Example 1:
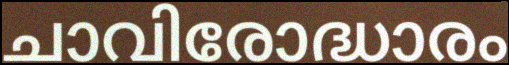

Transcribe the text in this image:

ചാവിരോദ്ധാരം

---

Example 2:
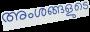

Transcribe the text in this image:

അംശങ്ങളുടെ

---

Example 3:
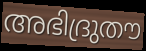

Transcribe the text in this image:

അഭിദ്രുതൗ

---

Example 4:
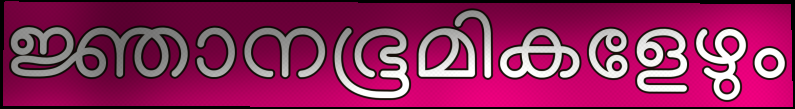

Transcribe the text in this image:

ജ്ഞാനഭൂമികളേഴും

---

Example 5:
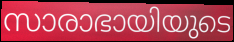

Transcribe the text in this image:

സാരാഭായിയുടെ